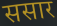
ससार